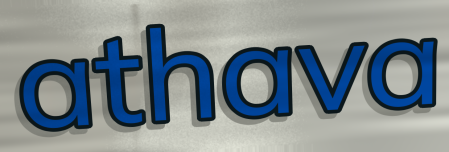
athava